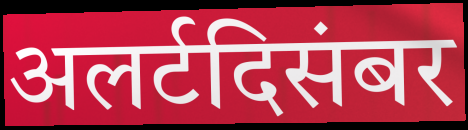
अलर्टदिसंबर